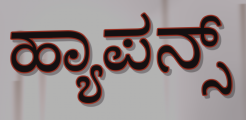
ಹ್ಯಾಪನ್ಸ್